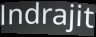
Indrajit